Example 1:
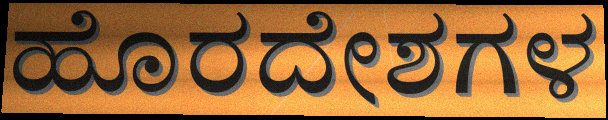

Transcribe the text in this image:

ಹೊರದೇಶಗಳ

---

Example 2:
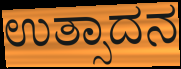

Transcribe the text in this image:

ಉತ್ಸಾದನ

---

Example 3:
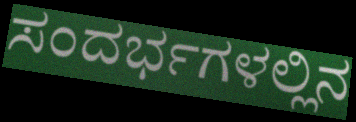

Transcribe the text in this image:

ಸಂದರ್ಭಗಳಲ್ಲಿನ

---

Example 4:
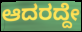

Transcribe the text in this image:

ಆದರದ್ದೇ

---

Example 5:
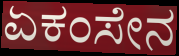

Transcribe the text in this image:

ಏಕಂಸೇನ